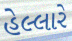
હેલ્લારે